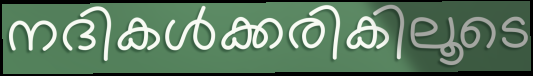
നദികൾക്കരികിലൂടെ